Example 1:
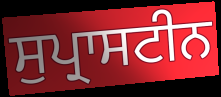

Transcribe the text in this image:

ਸੁਪ੍ਰਾਸਟੀਨ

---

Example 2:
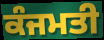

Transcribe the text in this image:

ਕੰਜਮਤੀ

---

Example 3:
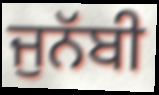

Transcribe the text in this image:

ਜੁਨੱਬੀ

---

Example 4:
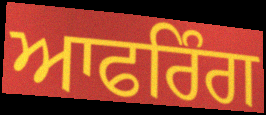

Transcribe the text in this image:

ਆਫਰਿੰਗ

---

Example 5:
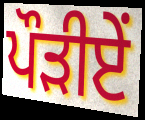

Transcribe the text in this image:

ਪੌੜੀਏਂ